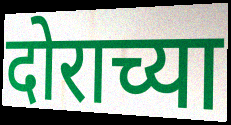
दोराच्या